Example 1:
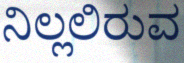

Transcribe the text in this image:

ನಿಲ್ಲಲಿರುವ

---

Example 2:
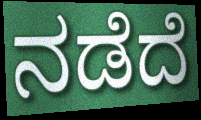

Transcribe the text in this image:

ನಡೆದೆ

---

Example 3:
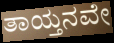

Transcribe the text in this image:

ತಾಯ್ತನವೇ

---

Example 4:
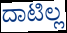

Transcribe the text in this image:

ದಾಟಿಲ್ಲ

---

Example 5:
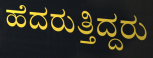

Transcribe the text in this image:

ಹೆದರುತ್ತಿದ್ದರು